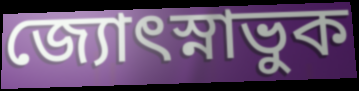
জ্যোৎস্নাভুক